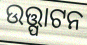
ଉତ୍ତ୍ପାଟନ